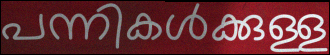
പന്നികൾക്കുള്ള